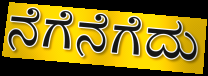
ನೆಗೆನೆಗೆದು